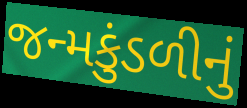
જન્મકુંડળીનું